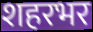
शहरभर